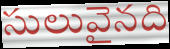
సులువైనది